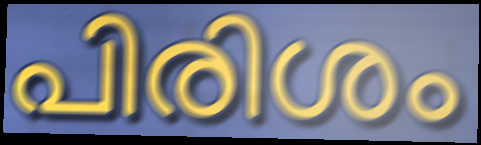
പിരിശം